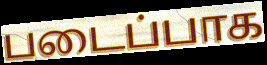
படைப்பாக